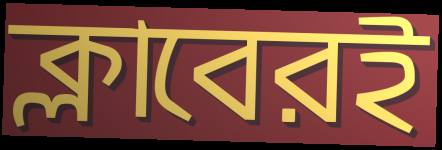
ক্লাবেরই